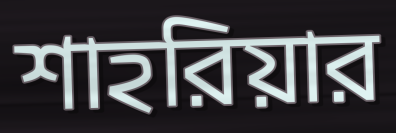
শাহরিয়ার